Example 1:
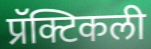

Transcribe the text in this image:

प्रॅक्टिकली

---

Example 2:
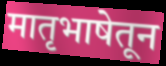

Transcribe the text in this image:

मातृभाषेतून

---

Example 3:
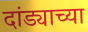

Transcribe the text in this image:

दांड्याच्या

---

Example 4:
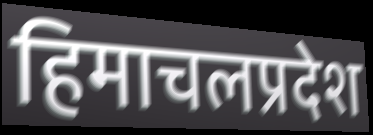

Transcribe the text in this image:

हिमाचलप्रदेश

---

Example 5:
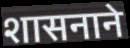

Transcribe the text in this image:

शासनाने